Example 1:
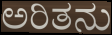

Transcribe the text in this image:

ಅರಿತನು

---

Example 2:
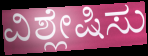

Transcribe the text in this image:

ವಿಶ್ಲೇಷಿಸು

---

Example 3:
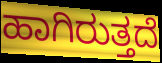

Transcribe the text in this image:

ಹಾಗಿರುತ್ತದೆ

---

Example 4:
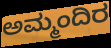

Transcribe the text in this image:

ಅಮ್ಮಂದಿರ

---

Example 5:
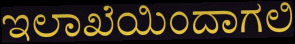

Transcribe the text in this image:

ಇಲಾಖೆಯಿಂದಾಗಲಿ